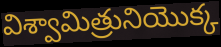
విశ్వామిత్రునియొక్క